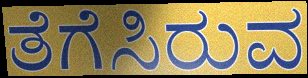
ತೆಗೆಸಿರುವ